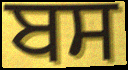
ਬਸ